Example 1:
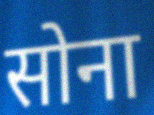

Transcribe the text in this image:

सोना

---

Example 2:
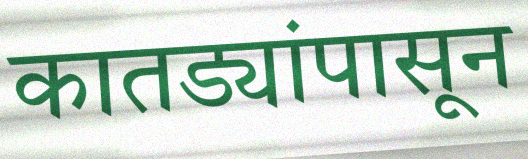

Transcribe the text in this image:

कातड्यांपासून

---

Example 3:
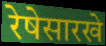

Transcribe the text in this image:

रेषेसारखे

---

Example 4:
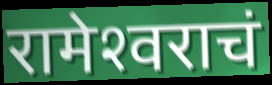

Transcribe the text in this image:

रामेश्वराचं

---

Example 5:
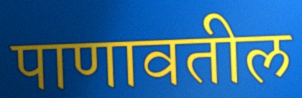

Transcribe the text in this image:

पाणावतील